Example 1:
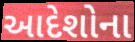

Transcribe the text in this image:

આદેશોના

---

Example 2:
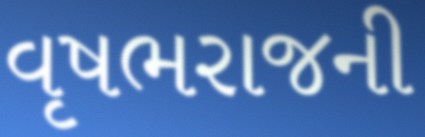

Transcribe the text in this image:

વૃષભરાજની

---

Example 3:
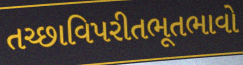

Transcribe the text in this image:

તચ્છાવિપરીતભૂતભાવો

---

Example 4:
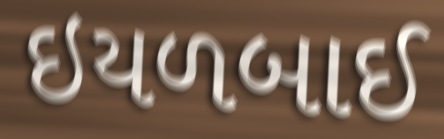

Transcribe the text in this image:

ઇયળબાઈ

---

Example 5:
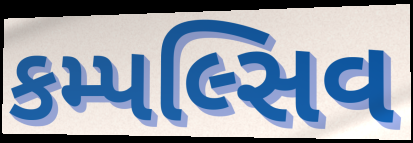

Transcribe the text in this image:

કમ્પલ્સિવ